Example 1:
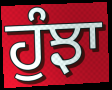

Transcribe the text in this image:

ਹੁੰਝਾ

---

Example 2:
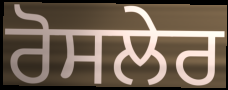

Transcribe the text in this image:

ਰੋਸਲੇਰ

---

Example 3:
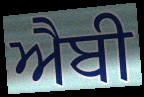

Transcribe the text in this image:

ਐਬੀ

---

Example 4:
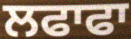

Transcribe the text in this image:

ਲਫਾਫਾ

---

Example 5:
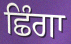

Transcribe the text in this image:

ਛਿੰਗਾ